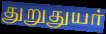
துறுதுயர்